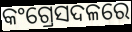
କଂଗ୍ରେସଦଳରେ